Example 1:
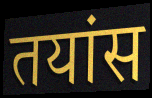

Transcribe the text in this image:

तयांस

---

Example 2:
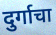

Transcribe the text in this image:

दुर्गाचा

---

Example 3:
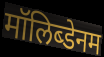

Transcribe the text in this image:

मॉलिब्डेनम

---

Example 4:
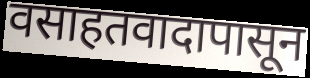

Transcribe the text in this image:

वसाहतवादापासून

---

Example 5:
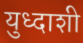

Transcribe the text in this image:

युध्दाशी